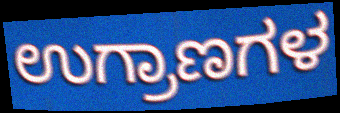
ಉಗ್ರಾಣಗಳ